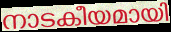
നാടകീയമായി